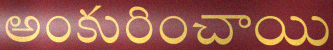
అంకురించాయి